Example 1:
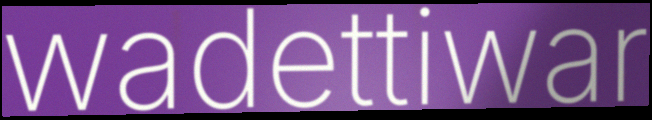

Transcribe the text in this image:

wadettiwar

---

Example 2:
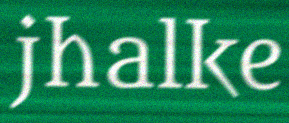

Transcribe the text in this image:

jhalke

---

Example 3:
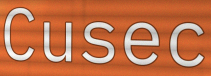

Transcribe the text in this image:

Cusec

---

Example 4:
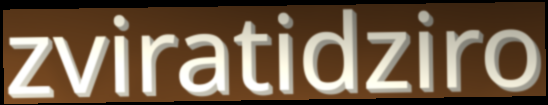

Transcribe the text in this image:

zviratidziro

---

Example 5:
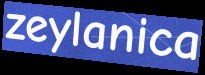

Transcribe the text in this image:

zeylanica